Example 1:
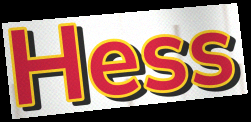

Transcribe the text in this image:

Hess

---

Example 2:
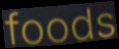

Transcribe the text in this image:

foods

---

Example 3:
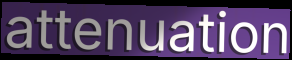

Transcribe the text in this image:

attenuation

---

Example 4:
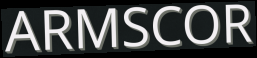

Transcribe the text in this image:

ARMSCOR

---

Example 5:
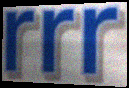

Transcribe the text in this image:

rrr